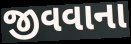
જીવવાના